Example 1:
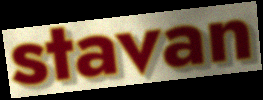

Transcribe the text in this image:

stavan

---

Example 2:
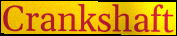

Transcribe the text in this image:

Crankshaft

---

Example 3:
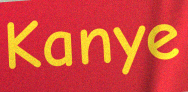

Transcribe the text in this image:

Kanye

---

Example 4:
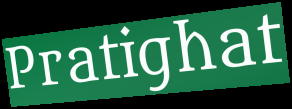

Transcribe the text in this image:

Pratighat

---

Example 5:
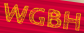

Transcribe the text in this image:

WGBH